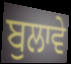
ਬੁਲਾਵੇ